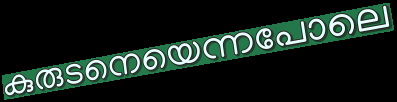
കുരുടനെയെന്നപോലെ